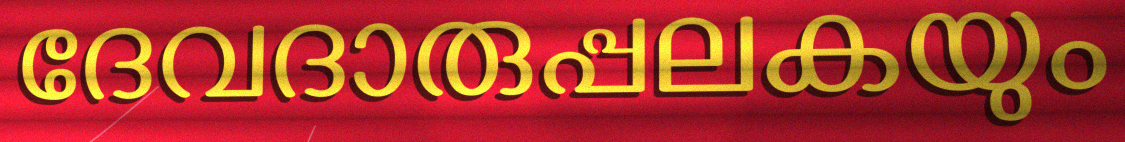
ദേവദാരുപ്പലകയും